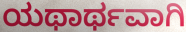
ಯಥಾರ್ಥವಾಗಿ